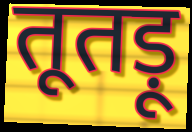
तूतड़ू